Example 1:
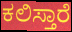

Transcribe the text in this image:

ಕಲಿಸ್ತಾರೆ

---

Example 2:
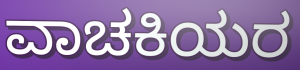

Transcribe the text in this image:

ವಾಚಕಿಯರ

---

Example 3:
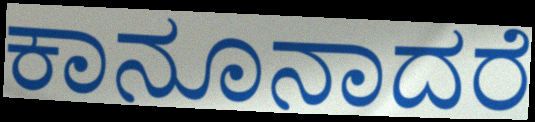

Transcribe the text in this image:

ಕಾನೂನಾದರೆ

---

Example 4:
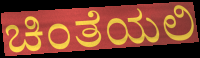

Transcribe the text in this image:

ಚಿಂತೆಯಲಿ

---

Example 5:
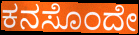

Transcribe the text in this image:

ಕನಸೊಂದೇ